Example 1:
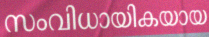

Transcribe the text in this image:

സംവിധായികയായ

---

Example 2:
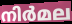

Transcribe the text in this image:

നിർമല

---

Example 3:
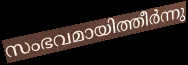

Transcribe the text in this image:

സംഭവമായിത്തീർന്നു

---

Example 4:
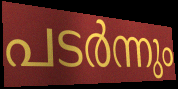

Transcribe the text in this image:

പടർന്നും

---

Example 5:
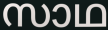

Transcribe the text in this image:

സാഥ